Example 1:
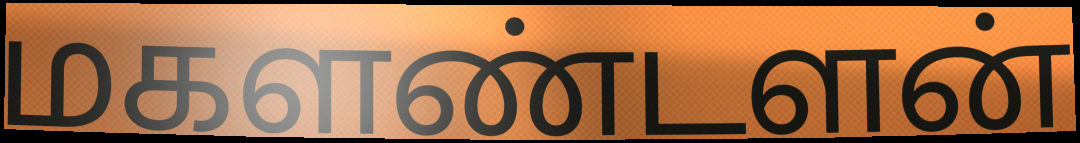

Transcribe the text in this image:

மகளண்டளன்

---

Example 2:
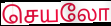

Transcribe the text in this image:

செயலோ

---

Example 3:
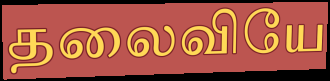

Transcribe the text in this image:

தலைவியே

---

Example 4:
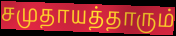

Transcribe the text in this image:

சமுதாயத்தாரும்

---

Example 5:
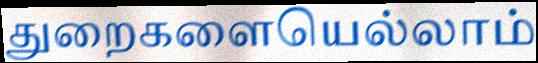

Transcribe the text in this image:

துறைகளையெல்லாம்